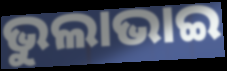
ଭୁଲାଭାଇ